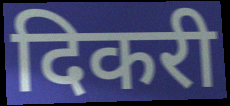
दिकरी